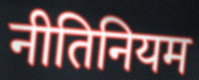
नीतिनियम